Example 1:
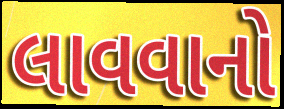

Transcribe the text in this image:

લાવવાનો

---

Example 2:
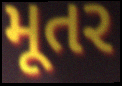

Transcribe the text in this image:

મૂતર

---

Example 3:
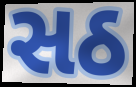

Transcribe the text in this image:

સઠ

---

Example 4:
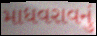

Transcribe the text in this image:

માધવરાવનું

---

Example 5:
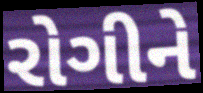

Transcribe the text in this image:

રોગીને